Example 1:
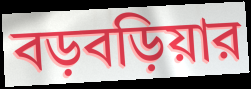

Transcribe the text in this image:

বড়বড়িয়ার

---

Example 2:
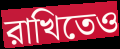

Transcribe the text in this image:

রাখিতেও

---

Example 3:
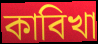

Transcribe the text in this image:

কাবিখা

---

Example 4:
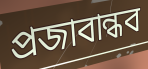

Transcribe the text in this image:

প্রজাবান্ধব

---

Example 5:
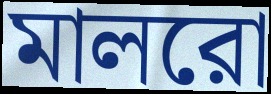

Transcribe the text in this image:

মালরো